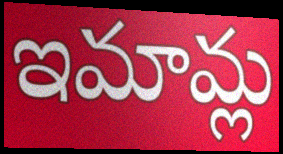
ఇమామ్ల